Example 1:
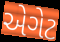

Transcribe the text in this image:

એગેટ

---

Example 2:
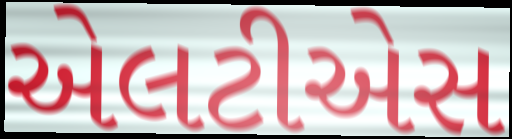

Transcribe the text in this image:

એલટીએસ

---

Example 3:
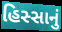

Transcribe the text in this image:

હિસ્સાનું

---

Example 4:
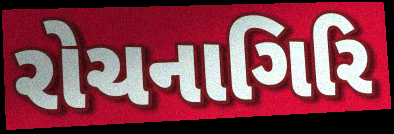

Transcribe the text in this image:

રોચનાગિરિ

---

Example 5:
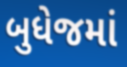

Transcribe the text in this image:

બુધેજમાં